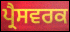
ਪ੍ਰੈਸਵਰਕ